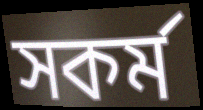
সকর্ম